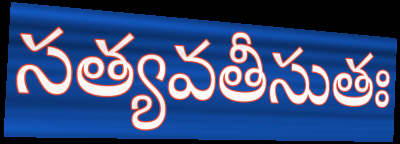
సత్యవతీసుతః